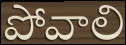
పోవాలి